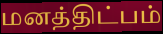
மனத்திட்பம்